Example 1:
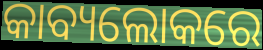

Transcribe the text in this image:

କାବ୍ୟଲୋକରେ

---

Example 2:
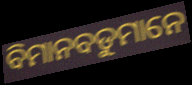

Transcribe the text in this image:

ବିମାନବଡୁମାନେ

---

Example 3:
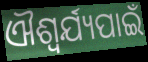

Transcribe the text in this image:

ଐଶ୍ୱର୍ଯ୍ୟପାଇଁ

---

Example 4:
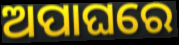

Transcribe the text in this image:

ଅପାଘରେ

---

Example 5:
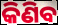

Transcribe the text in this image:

କିଣିବ